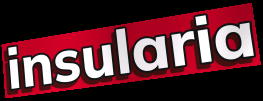
insularia